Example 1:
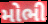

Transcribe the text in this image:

મોભી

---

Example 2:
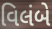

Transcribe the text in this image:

વિલંબે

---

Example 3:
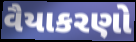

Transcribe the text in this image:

વૈયાકરણો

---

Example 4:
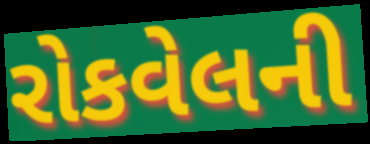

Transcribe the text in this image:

રોકવેલની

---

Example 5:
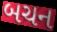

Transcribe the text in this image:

બચન